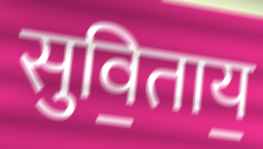
सुवि॒ताय॒